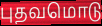
புதவமொடு